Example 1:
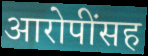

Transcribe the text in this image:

आरोपींसह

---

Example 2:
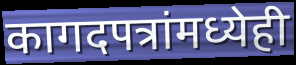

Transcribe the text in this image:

कागदपत्रांमध्येही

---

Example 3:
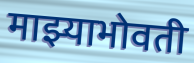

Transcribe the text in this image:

माझ्याभोवती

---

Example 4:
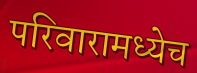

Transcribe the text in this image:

परिवारामध्येच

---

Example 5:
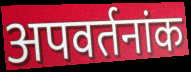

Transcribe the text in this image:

अपवर्तनांक